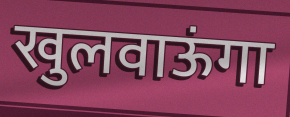
खुलवाऊंगा